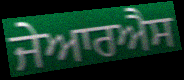
ਜੇਆਰਐਸ